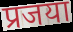
प्रजया